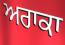
ਅਰਾਕਾ